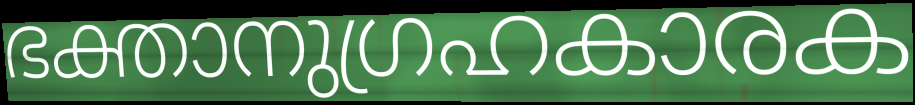
ഭക്താനുഗ്രഹകാരക